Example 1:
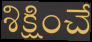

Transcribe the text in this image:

శిక్షించే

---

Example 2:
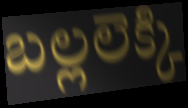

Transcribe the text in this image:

బల్లలెక్కి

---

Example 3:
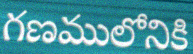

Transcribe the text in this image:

గణములోనికి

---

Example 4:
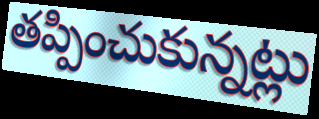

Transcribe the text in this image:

తప్పించుకున్నట్లు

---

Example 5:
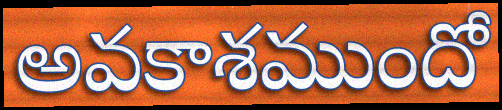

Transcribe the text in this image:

అవకాశముందో